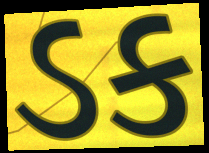
ડક